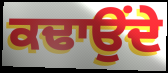
ਕਢਾਉਂਦੇ